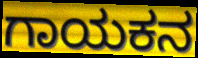
ಗಾಯಕನ